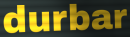
durbar